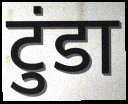
टुंडा